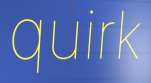
quirk